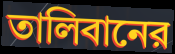
তালিবানের